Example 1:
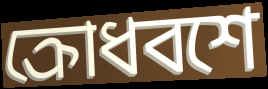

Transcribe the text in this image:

ক্রোধবশে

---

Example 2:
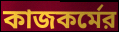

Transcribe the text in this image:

কাজকর্মের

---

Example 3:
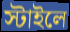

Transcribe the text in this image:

স্টাইলে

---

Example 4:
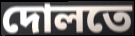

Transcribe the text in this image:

দোলতে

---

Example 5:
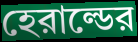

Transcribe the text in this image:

হেরাল্ডের